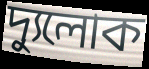
দ্যুলোক